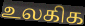
உலகிக